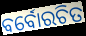
ବର୍ବୋରଚିତ